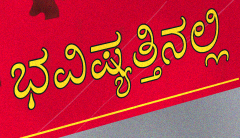
ಭವಿಷ್ಯತ್ತಿನಲ್ಲಿ